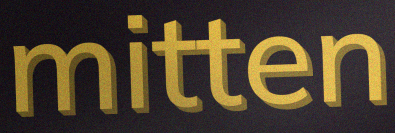
mitten